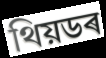
থিয়ডৰ